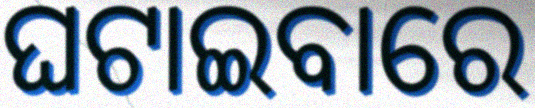
ଘଟାଇବାରେ